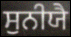
ਸੁਨੀਯੈ